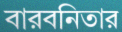
বারবনিতার